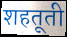
शहतूती